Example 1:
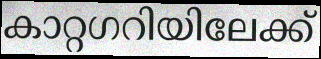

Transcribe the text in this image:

കാറ്റഗറിയിലേക്ക്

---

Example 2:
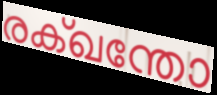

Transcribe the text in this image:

രക്ഖന്തോ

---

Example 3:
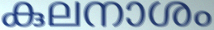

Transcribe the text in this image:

കുലനാശം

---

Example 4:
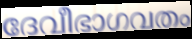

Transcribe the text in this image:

ദേവീഭാഗവതം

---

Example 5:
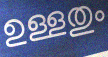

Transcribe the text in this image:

ഉള്ളതും